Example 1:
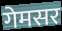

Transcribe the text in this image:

गेमसर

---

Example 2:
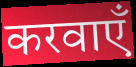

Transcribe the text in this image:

करवाएँ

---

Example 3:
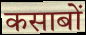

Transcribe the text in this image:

कसाबों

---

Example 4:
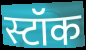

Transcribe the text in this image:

स्‍टॉक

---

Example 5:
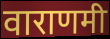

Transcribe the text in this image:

वाराणमी